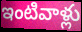
ఇంటివాళ్లు